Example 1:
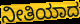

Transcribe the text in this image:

ನೀತಿಯಾದ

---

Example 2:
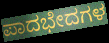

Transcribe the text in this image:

ಪಾದಭೇದಗಳ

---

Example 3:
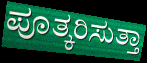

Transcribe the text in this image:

ಪೂತ್ಕರಿಸುತ್ತಾ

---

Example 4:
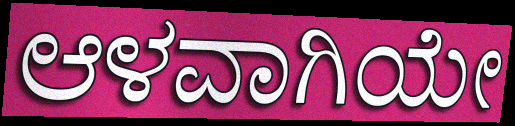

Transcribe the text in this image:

ಆಳವಾಗಿಯೇ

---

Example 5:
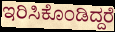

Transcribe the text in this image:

ಇರಿಸಿಕೊಂಡಿದ್ದರೆ